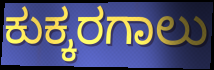
ಕುಕ್ಕರಗಾಲು